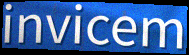
invicem